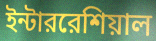
ইন্টাররেশিয়াল